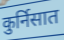
कुर्निसात